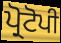
ਪ੍ਰੋਟੋਪੀ